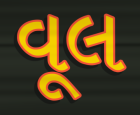
વૂલ